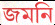
জমনি